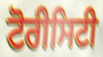
ਟੋਰੀਸਿਟੀ